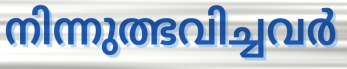
നിന്നുത്ഭവിച്ചവർ